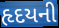
હૃદયની